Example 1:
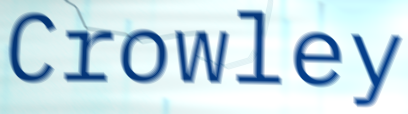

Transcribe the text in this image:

Crowley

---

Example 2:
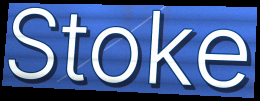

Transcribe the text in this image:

Stoke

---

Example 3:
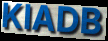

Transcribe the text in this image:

KIADB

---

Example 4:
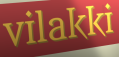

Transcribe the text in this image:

vilakki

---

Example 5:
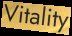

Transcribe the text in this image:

Vitality